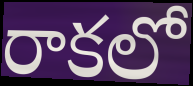
రాకలో